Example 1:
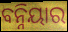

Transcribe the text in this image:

ବନ୍ନିୟାର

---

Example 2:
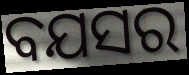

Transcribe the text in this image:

ବଯସର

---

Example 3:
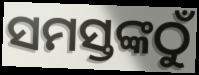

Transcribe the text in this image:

ସମସ୍ତଙ୍କଠୁଁ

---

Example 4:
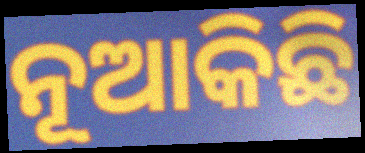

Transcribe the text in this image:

ନୂଆକିଛି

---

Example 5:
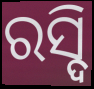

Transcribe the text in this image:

ରସ୍ଦି